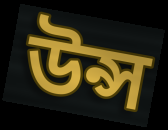
উন্স